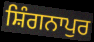
ਸ਼ਿੰਗਨਾਪੁਰ